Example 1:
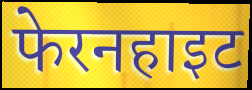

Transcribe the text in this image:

फेरनहाइट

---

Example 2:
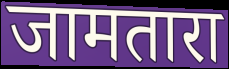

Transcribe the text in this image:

जामतारा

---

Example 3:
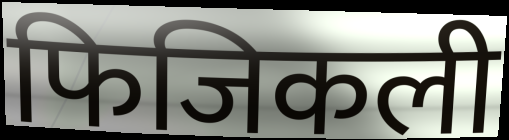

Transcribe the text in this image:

फिजिकली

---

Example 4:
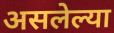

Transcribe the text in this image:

असलेल्या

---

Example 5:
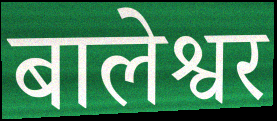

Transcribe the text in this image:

बालेश्वर